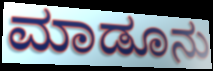
ಮಾಡೂನು